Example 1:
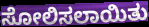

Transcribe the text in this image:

ಸೋಲಿಸಲಾಯಿತು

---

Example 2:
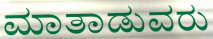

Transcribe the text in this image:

ಮಾತಾಡುವರು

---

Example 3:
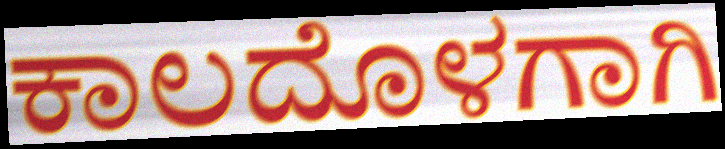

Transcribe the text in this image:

ಕಾಲದೊಳಗಾಗಿ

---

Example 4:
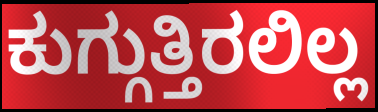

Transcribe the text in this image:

ಕುಗ್ಗುತ್ತಿರಲಿಲ್ಲ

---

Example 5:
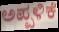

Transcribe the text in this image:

ಅಪ್ಪಳಿಕೆ